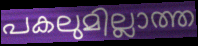
പകലുമില്ലാത്ത